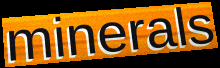
minerals